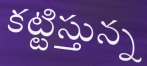
కట్టిస్తున్న